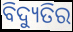
ବିଦ୍ୟୁତିର